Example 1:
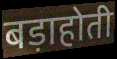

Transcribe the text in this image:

बड़ाहोती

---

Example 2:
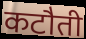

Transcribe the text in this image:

कटौती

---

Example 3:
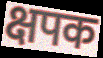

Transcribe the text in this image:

क्षपक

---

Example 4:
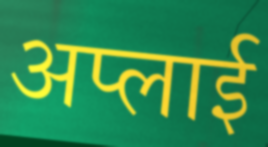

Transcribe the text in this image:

अप्‍लाई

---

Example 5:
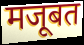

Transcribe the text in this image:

मजूबत